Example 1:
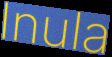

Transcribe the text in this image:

Inula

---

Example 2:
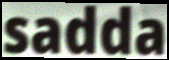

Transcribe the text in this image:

sadda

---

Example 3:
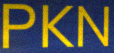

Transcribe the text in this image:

PKN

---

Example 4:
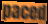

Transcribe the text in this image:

paced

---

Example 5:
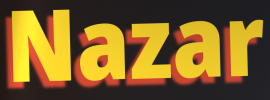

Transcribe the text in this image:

Nazar